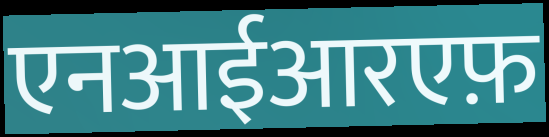
एनआईआरएफ़